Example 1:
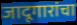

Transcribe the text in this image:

जादूगारांचा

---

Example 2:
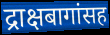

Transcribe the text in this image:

द्राक्षबागांसह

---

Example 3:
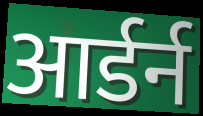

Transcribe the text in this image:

आर्डर्न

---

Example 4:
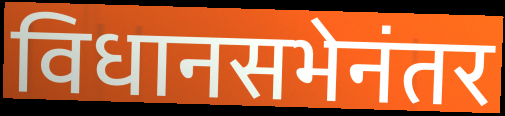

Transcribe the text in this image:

विधानसभेनंतर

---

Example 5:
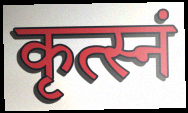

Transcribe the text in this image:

कृत्स्नं